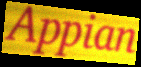
Appian